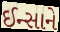
ઈન્સાને